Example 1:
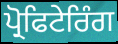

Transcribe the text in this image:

ਪ੍ਰੋਫਿਟੇਰਿੰਗ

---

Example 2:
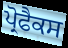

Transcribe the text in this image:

ਪ੍ਰੋਫੈਕਸ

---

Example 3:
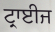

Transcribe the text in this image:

ਟ੍ਰਾਈਜ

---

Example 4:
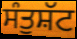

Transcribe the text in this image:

ਸੰਤੁਸ਼ੱਟ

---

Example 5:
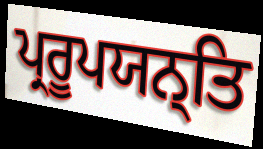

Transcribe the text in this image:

ਪ੍ਰਰੂਪਯਨ੍ਤਿ